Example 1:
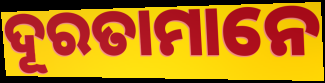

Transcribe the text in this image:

ଦୂରତାମାନେ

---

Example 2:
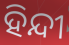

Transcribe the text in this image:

ହିନ୍ଦୀ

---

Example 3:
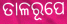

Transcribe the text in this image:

ତାଳରୂପେ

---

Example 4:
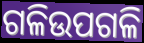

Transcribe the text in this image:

ଗଳିଉପଗଳି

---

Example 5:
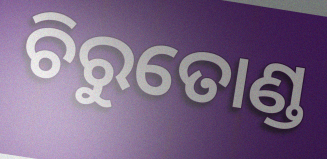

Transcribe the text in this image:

ଚିରୁତୋଣ୍ଡ